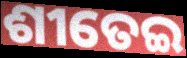
ଶୀତେଇ